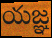
యజ్ఞ